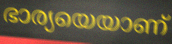
ഭാര്യയെയാണ്